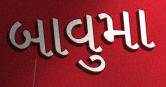
બાવુમા